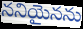
ననియైనను